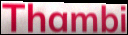
Thambi